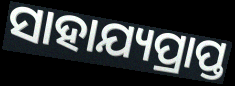
ସାହାଯ୍ୟପ୍ରାପ୍ତ